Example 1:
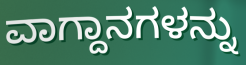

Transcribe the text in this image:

ವಾಗ್ದಾನಗಳನ್ನು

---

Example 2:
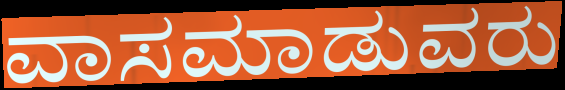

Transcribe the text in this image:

ವಾಸಮಾಡುವರು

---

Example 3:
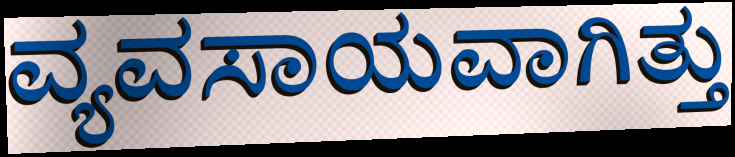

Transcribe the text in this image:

ವ್ಯವಸಾಯವಾಗಿತ್ತು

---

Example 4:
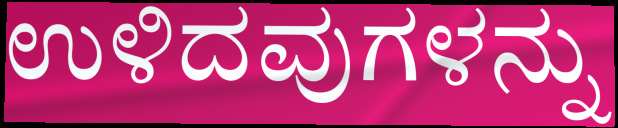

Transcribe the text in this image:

ಉಳಿದವುಗಳನ್ನು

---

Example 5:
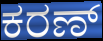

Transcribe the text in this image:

ಕರಣ್